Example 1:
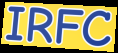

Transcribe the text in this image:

IRFC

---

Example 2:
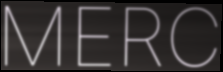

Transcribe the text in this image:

MERC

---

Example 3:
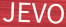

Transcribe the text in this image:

JEVO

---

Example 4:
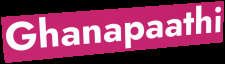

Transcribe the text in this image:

Ghanapaathi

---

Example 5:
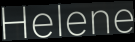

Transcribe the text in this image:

Helene